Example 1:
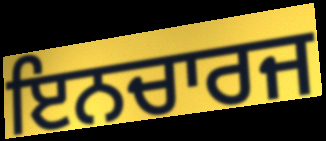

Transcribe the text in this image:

ਇਨਚਾਰਜ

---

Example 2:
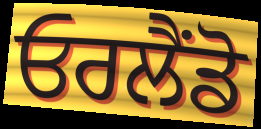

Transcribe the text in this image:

ਓਰਲੈਂਡੋ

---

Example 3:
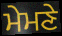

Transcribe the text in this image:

ਮੇਮਣੇ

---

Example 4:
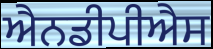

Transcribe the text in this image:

ਐਨਡੀਪੀਐਸ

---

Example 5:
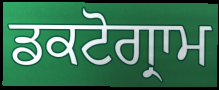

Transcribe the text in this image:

ਡਕਟੋਗ੍ਰਾਮ